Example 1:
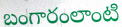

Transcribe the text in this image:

బంగారంలాంటి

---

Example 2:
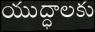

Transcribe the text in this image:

యుద్ధాలకు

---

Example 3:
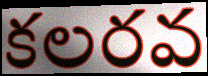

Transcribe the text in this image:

కలరవ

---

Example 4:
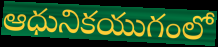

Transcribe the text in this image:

ఆధునికయుగంలో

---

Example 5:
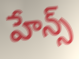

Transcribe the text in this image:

హేన్స్